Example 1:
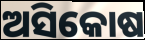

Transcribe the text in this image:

ଅସିକୋଷ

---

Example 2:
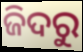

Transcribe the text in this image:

ଜିଦରୁ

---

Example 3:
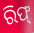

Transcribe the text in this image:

ରିଫ୍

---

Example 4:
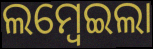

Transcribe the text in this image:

ଲମ୍ବେଇଲା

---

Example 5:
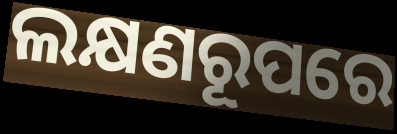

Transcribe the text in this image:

ଲକ୍ଷଣରୂପରେ